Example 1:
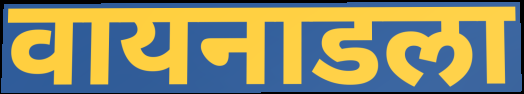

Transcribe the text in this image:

वायनाडला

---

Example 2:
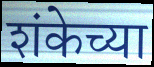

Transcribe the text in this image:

शंकेच्या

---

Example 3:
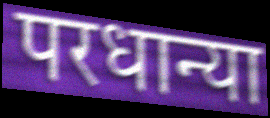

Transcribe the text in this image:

परधान्या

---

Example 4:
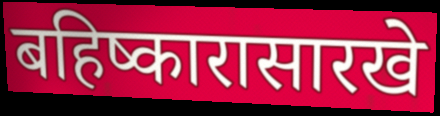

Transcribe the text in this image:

बहिष्कारासारखे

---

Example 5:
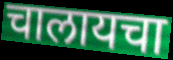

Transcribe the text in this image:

चालायचा